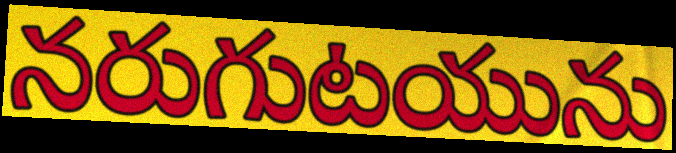
నరుగుటయును